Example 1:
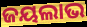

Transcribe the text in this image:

ଜୟଲାଭ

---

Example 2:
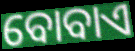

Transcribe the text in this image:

ବୋବାଏ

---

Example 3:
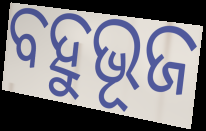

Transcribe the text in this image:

ବହୁଭୂଜ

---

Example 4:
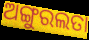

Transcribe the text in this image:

ଅଙ୍ଗୁରଲତା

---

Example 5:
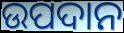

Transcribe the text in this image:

ଉପଦାନ